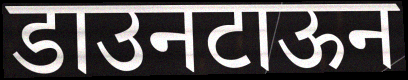
डाउनटाऊन